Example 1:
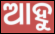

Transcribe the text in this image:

ଆହୁ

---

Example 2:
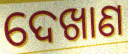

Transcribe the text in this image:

ଦେଖାଣ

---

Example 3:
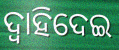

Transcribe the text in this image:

ଦ୍ବାହିଦେଇ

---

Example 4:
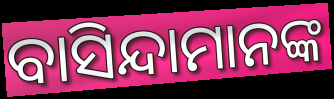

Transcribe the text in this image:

ବାସିନ୍ଦାମାନଙ୍କ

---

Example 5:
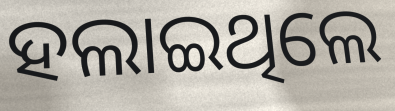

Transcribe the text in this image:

ହଲାଇଥିଲେ